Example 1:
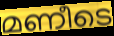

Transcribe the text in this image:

മണീടെ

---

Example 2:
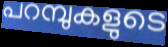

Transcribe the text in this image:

പറമ്പുകളുടെ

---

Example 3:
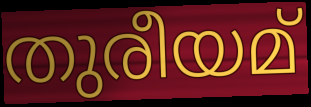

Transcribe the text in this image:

തുരീയമ്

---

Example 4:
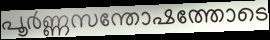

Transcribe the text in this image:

പൂർണ്ണസന്തോഷത്തോടെ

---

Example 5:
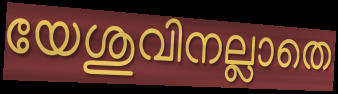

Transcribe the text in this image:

യേശുവിനല്ലാതെ